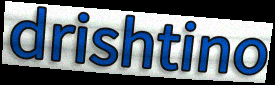
drishtino